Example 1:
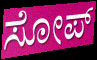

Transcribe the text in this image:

ಸೋಪ್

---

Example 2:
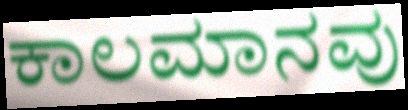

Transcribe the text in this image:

ಕಾಲಮಾನವು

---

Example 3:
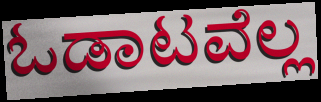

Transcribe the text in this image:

ಓಡಾಟವೆಲ್ಲ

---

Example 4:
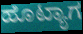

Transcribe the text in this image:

ಹೊಟ್ಯಾಗ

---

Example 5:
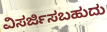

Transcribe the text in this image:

ವಿಸರ್ಜಿಸಬಹುದು